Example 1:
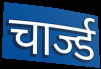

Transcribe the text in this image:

चार्ज्ड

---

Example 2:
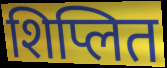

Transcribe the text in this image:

शिप्लित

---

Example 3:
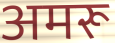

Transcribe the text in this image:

अमरू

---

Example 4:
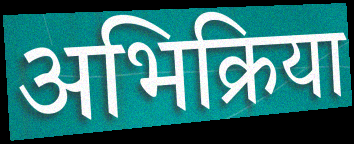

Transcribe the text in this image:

अभिक्रिया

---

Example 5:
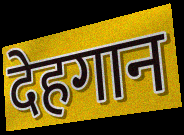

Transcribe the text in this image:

देहगान